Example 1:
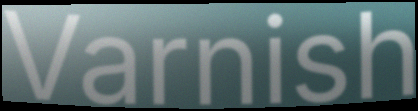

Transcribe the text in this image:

Varnish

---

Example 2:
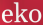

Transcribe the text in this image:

eko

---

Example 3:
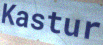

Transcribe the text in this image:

Kastur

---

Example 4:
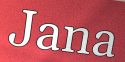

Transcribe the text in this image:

Jana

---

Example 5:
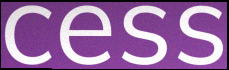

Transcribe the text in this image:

cess